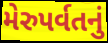
મેરુપર્વતનું